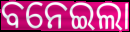
ବନେଇଲା